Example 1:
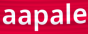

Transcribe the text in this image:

aapale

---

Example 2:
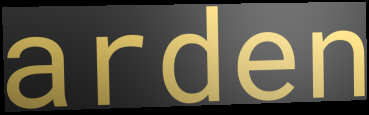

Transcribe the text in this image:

arden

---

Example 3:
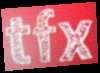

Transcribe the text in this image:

tfx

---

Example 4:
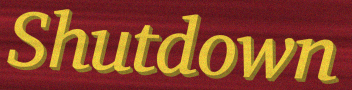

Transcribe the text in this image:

Shutdown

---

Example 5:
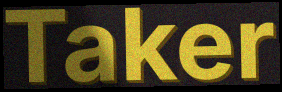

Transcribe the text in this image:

Taker